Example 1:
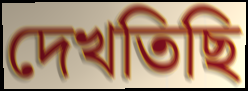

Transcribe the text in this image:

দেখতিছি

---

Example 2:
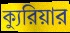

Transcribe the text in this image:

ক্যুরিয়ার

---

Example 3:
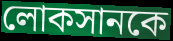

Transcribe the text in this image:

লোকসানকে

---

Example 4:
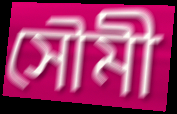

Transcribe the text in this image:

সৌমী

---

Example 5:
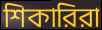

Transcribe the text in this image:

শিকারিরা